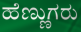
ಹೆಣ್ಣುಗರು